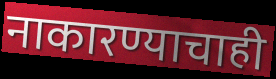
नाकारण्याचाही